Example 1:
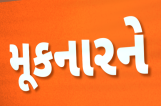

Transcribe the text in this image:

મૂકનારને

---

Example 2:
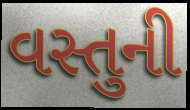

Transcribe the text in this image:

વસ્તુની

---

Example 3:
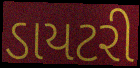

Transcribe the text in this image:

ડાયટરી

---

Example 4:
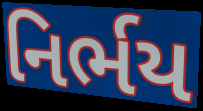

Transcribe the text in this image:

નિર્ભય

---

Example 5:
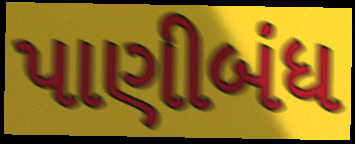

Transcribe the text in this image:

પાણીબંધ